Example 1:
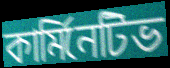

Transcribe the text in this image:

কার্মিনেটিভ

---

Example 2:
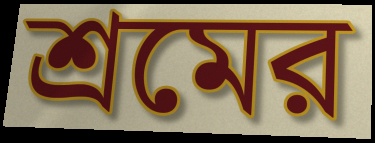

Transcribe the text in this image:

শ্রমের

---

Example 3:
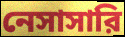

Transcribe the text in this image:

নেসাসারি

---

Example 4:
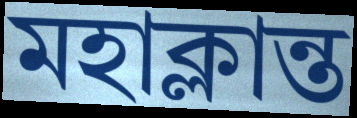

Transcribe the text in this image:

মহাক্লান্ত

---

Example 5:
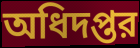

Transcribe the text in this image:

অধিদপ্তর